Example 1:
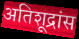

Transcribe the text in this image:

अतिशूद्रांस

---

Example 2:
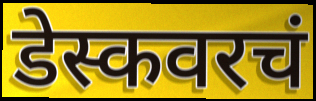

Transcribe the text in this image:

डेस्कवरचं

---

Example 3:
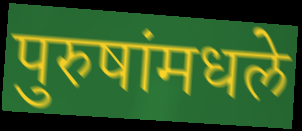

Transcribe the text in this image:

पुरुषांमधले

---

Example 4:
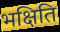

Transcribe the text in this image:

भक्षिति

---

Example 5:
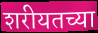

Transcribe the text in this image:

शरीयतच्या